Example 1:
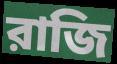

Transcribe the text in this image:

রাজি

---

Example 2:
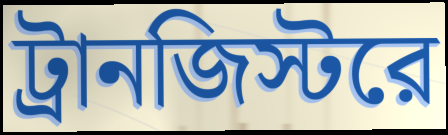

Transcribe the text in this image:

ট্রানজিস্টরে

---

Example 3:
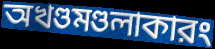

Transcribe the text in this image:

অখণ্ডমণ্ডলাকারং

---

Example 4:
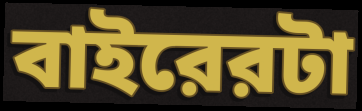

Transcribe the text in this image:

বাইরেরটা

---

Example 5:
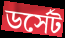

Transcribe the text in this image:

ডর্সেট